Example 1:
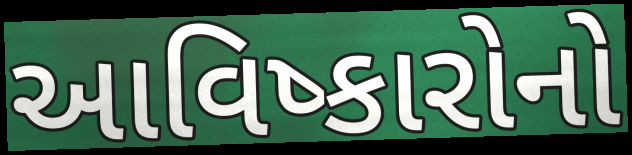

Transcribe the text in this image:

આવિષ્કારોનો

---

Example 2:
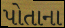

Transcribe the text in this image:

પોતાના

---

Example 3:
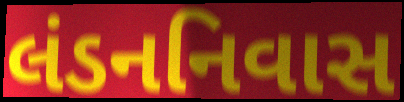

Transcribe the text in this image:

લંડનનિવાસ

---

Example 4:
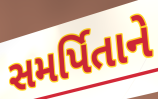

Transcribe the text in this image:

સમર્પિતાને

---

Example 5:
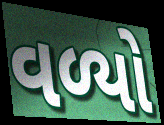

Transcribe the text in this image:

વળ્યો